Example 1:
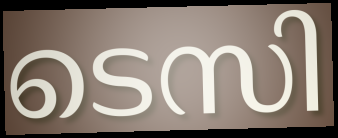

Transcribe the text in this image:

ടെസി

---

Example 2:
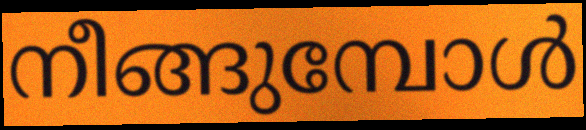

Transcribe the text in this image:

നീങ്ങുമ്പോൾ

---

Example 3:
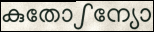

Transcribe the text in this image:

കുതോഽന്യോ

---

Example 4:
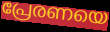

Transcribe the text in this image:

പ്രേരണയെ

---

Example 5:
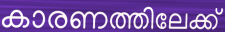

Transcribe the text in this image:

കാരണത്തിലേക്ക്